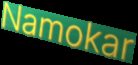
Namokar